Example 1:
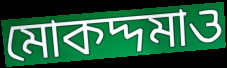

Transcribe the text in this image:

মোকদ্দমাও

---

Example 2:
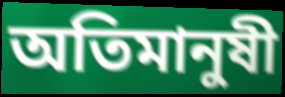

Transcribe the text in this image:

অতিমানুষী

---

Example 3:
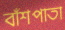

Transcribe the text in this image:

বাঁশপাতা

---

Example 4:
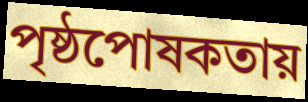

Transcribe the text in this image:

পৃষ্ঠপোষকতায়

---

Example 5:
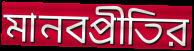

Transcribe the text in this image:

মানবপ্রীতির